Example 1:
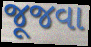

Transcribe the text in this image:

જૂજવા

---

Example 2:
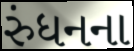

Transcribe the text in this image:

રુંધનના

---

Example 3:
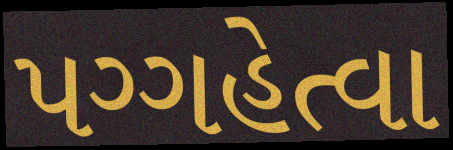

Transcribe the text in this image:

પગ્ગહેત્વા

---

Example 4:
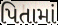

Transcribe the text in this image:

પિતામાં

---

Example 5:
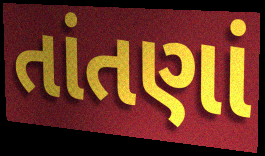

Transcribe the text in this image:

તાંતણાં